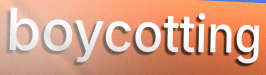
boycotting